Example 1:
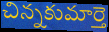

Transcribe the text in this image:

చిన్నకుమార్తె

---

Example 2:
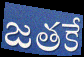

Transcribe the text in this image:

జతకే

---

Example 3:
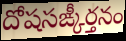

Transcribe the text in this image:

దోషసఙ్కీర్తనం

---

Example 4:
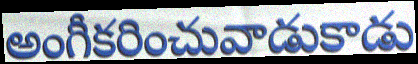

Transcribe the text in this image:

అంగీకరించువాడుకాడు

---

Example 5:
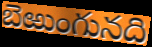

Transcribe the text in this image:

బెఱుంగునది